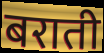
बराती